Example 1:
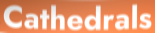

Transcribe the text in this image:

Cathedrals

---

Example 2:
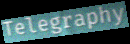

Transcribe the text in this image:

Telegraphy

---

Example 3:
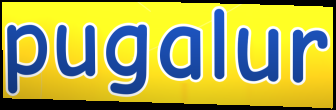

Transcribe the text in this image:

pugalur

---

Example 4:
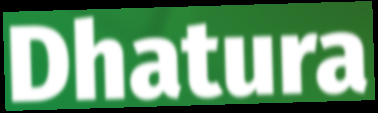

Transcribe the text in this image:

Dhatura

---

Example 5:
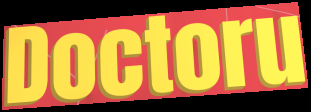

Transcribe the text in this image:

Doctoru